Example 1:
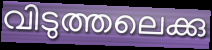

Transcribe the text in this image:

വിടുത്തലെക്കു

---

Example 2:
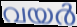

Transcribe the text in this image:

വയർ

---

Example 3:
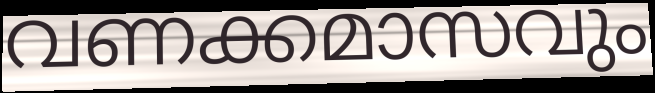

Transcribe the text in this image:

വണക്കമാസവും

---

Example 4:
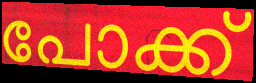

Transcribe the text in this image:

പോക്ക്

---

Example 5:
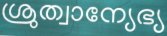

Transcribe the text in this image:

ശ്രുത്വാന്യേഭ്യ